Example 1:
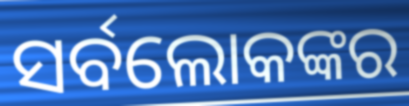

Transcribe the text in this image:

ସର୍ବଲୋକଙ୍କର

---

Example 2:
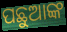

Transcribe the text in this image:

ପଛୁଆଙ୍କ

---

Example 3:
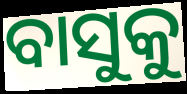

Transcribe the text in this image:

ବାସୁକୁ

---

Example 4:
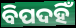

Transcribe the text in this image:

ବିପଦହିଁ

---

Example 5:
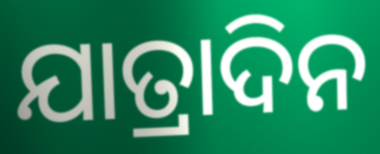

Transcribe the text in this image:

ଯାତ୍ରାଦିନ